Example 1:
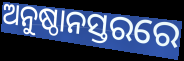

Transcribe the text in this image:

ଅନୁଷ୍ଠାନସ୍ତରରେ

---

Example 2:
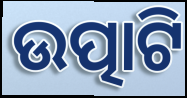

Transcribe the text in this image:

ଉତ୍ପାଟି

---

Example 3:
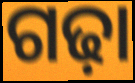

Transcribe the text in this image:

ଗଢ଼ା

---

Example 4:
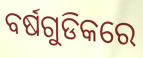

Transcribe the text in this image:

ବର୍ଷଗୁଡିକରେ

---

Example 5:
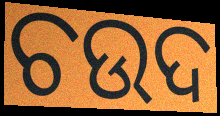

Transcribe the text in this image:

ଚଉଦ